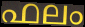
ഫലം